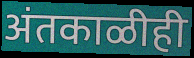
अंतकाळीही